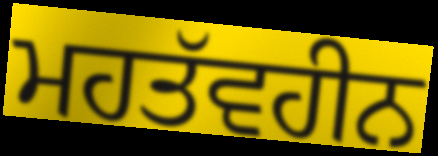
ਮਹਤੱਵਹੀਨ